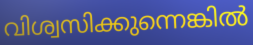
വിശ്വസിക്കുന്നെങ്കിൽ